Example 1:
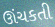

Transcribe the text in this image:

ઊંચકતી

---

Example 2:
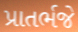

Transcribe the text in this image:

પ્રાતર્ભજે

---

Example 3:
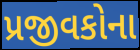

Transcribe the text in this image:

પ્રજીવકોના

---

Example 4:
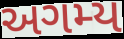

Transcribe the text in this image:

અગમ્ય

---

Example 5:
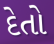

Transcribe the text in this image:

દેતો